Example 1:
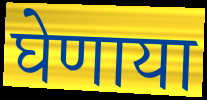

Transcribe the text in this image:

घेणाया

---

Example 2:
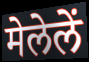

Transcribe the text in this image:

मेलेलें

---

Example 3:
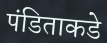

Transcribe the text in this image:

पंडिताकडे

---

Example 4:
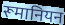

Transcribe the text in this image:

रूमानियन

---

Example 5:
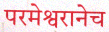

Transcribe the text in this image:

परमेश्वरानेच